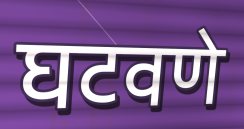
घटवणे